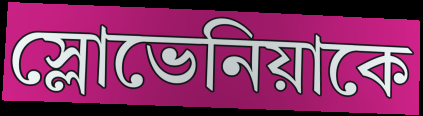
স্লোভেনিয়াকে